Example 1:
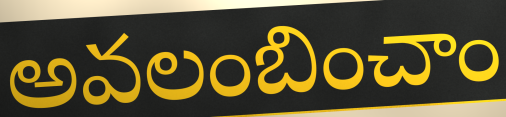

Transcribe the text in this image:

అవలంబించాం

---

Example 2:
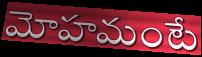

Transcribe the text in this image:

మోహమంటే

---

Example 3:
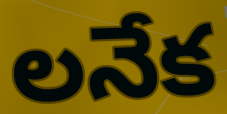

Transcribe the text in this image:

లనేక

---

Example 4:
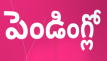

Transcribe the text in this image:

పెండింగ్లో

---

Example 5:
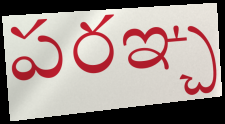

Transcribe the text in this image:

పరఞ్చ